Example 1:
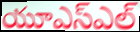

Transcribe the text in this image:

యూఎస్ఎల్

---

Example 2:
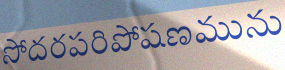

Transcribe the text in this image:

సోదరపరిపోషణమును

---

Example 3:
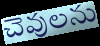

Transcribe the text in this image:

చెవులను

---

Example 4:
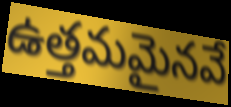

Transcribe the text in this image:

ఉత్తమమైనవే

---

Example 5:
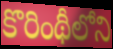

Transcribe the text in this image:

కొరింథీలోని